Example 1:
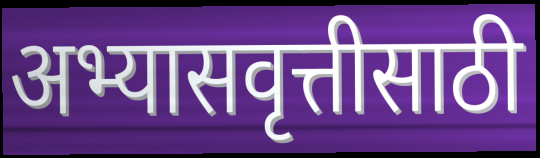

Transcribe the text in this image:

अभ्यासवृत्तीसाठी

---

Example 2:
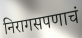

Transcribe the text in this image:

निरागसपणाचं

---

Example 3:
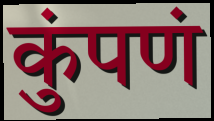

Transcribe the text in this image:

कुंपणं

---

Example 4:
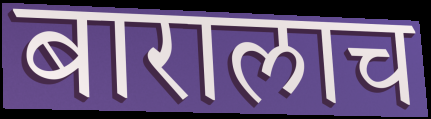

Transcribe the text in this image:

बारालाच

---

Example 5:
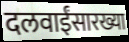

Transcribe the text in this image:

दलवाईंसारख्या